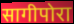
सागीपोरा